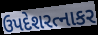
ઉપદેશરત્નાકર